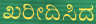
ಖರೀದಿಸಿದ